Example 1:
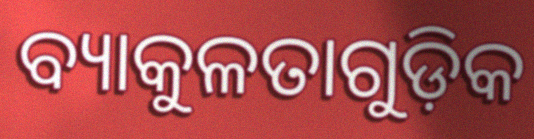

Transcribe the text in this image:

ବ୍ୟାକୁଳତାଗୁଡ଼ିକ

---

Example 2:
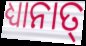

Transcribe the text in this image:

ଧ୍ୟାନାତ୍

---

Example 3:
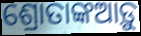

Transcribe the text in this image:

ଶ୍ରୋତାଙ୍କଆଡ଼ୁ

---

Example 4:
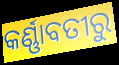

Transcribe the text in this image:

କର୍ଣ୍ଣାବତୀରୁ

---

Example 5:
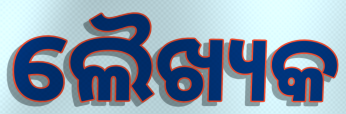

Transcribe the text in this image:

ଲୈଖ୍ୟକ